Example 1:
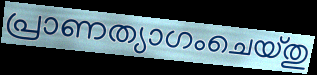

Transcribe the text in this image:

പ്രാണത്യാഗംചെയ്തു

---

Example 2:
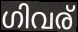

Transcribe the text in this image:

ഗിവര്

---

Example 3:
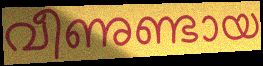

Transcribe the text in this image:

വീണുണ്ടായ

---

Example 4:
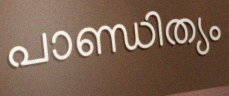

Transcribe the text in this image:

പാണ്ഡിത്യം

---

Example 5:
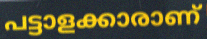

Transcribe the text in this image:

പട്ടാളക്കാരാണ്